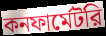
কনফার্মেটরি